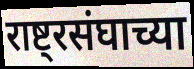
राष्ट्रसंघाच्या